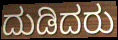
ದುಡಿದರು